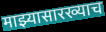
माझ्यासारख्याच